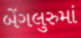
બેંગલુરુમાં